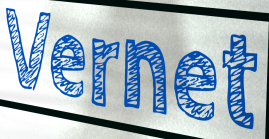
Vernet